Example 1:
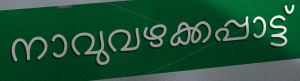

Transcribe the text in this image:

നാവുവഴക്കപ്പാട്ട്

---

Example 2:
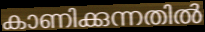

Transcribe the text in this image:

കാണിക്കുന്നതിൽ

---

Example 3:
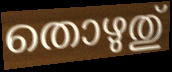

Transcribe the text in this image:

തൊഴുതു്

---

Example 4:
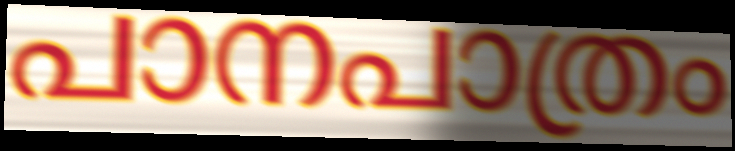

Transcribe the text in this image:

പാനപാത്രം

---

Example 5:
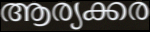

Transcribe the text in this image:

ആര്യക്കര